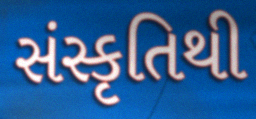
સંસ્કૃતિથી